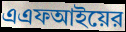
এএফআইয়ের